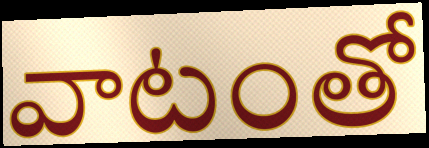
వాటంతో